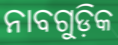
ନାବଗୁଡ଼ିକ